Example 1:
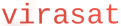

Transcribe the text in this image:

virasat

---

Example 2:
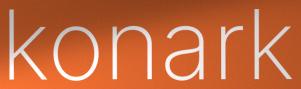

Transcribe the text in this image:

konark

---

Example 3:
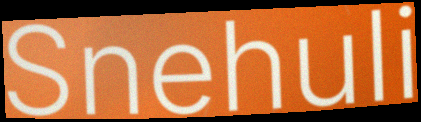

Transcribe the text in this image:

Snehuli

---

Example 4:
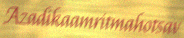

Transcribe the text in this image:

Azadikaamritmahotsav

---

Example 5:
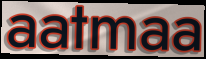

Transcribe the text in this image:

aatmaa